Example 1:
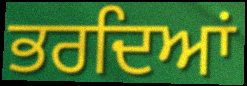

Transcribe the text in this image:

ਭਰਦਿਆਂ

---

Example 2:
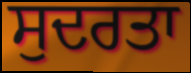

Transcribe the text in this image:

ਸੁਦਰਤਾ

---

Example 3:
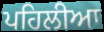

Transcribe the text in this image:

ਪਹਿਲੀਆ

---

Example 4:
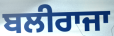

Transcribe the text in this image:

ਬਲੀਰਾਜਾ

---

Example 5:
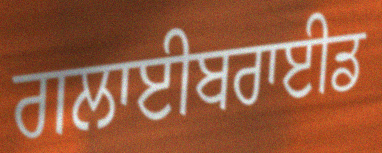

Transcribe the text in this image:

ਗਲਾਈਬਰਾਈਡ